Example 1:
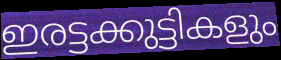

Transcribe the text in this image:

ഇരട്ടക്കുട്ടികളും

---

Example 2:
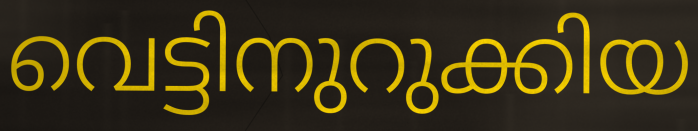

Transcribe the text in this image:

വെട്ടിനുറുക്കിയ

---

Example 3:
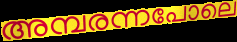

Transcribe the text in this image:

അമ്പരന്നപോലെ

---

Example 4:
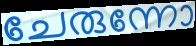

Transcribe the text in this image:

ചേരുന്നോ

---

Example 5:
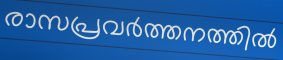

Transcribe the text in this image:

രാസപ്രവർത്തനത്തിൽ